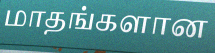
மாதங்களான